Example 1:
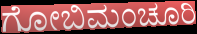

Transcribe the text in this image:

ಗೋಬಿಮಂಚೂರಿ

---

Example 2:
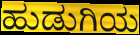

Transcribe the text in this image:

ಹುಡುಗಿಯ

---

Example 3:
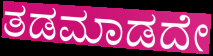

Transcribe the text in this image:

ತಡಮಾಡದೇ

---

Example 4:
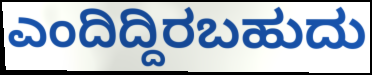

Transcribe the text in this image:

ಎಂದಿದ್ದಿರಬಹುದು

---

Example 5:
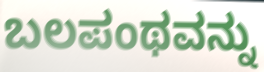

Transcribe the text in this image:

ಬಲಪಂಥವನ್ನು